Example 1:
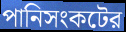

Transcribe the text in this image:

পানিসংকটের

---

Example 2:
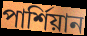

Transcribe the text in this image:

পার্শিয়ান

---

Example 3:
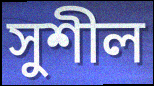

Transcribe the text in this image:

সুশীল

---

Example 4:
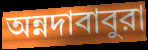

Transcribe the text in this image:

অন্নদাবাবুরা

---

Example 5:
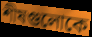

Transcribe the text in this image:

শীষগুলোকে